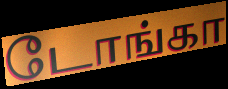
டோங்கா